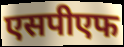
एसपीएफ